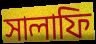
সালাফি